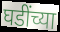
घडींच्या